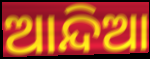
ଆନ୍ଦିଆ